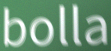
bolla